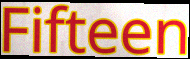
Fifteen